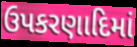
ઉપકરણાદિમાં